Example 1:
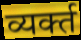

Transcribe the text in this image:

व्यर्क्त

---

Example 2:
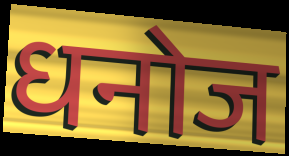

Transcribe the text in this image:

धनोज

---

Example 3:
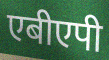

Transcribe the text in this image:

एबीएपी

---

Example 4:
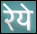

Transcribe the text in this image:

रेये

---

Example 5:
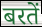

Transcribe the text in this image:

बरतें